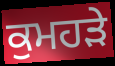
ਕੁਮਹੜੇ